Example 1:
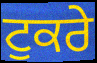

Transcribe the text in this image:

ਟੁਕਰੇ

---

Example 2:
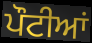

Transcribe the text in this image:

ਪੌਟੀਆਂ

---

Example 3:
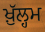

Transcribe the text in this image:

ਖ਼ੁੱਲ੍ਹਮ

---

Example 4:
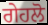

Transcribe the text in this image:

ਗੇਹਲੋ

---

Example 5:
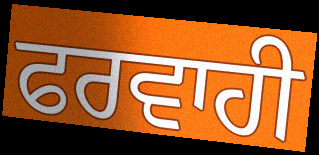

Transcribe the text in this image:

ਫਰਵਾਹੀ